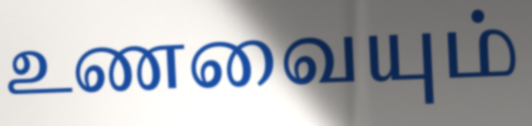
உணவையும்